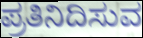
ಪ್ರತಿನಿದಿಸುವ